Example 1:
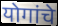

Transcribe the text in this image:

योगांचे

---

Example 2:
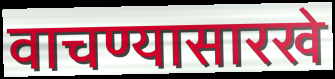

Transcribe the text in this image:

वाचण्यासारखे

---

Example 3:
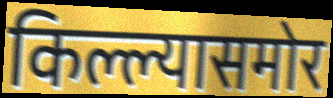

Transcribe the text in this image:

किल्ल्यासमोर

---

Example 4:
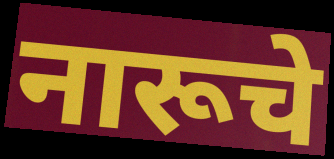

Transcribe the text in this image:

नारूचे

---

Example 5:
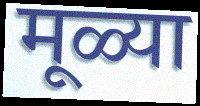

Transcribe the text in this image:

मूळ्या